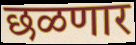
छळणार